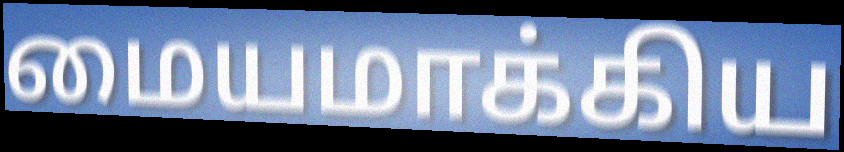
மையமாக்கிய